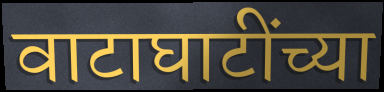
वाटाघाटींच्या